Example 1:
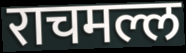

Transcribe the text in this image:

राचमल्ल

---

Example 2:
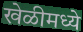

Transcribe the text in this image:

खेळीमध्ये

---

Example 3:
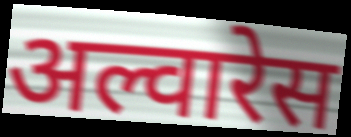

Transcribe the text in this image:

अल्वारेस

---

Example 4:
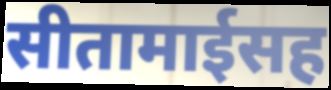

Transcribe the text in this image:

सीतामाईसह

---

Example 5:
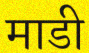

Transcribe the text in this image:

माडी